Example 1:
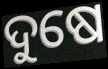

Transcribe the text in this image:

ଦୁଷେ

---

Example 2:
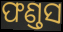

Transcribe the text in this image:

ଫଣ୍ଡସ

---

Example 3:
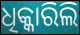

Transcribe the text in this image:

ଧିକ୍କାରିଲି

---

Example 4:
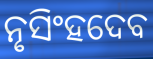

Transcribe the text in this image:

ନୃସିଂହଦେବ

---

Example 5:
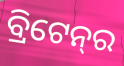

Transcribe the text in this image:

ବ୍ରିଟେନ୍‌ର